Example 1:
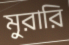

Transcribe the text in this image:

মুরারি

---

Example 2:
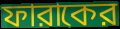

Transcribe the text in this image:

ফারাকের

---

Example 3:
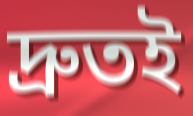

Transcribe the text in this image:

দ্রুতই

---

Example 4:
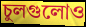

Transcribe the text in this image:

চুলগুলোও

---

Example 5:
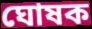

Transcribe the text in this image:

ঘোষক